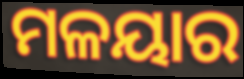
ମଳୟାର